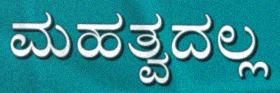
ಮಹತ್ವದಲ್ಲ